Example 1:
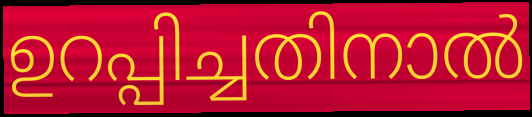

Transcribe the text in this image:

ഉറപ്പിച്ചതിനാൽ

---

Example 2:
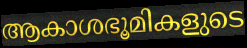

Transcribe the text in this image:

ആകാശഭൂമികളുടെ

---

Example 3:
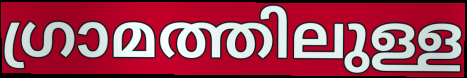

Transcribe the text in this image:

ഗ്രാമത്തിലുള്ള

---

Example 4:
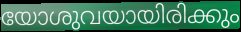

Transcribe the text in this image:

യോശുവയായിരിക്കും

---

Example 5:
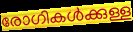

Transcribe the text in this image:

രോഗികൾക്കുള്ള